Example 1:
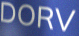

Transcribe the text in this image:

DORV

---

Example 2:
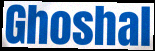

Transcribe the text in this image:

Ghoshal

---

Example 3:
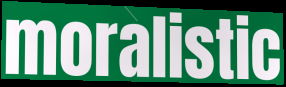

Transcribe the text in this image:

moralistic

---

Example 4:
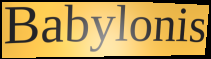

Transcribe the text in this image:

Babylonis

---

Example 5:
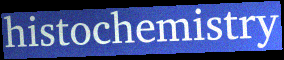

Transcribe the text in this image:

histochemistry